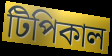
টিপিকাল